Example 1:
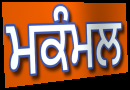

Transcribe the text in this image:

ਮਕੰਮਲ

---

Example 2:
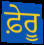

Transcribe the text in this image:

ਫ਼ੇਰੂ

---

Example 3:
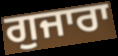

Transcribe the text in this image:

ਗੁਜਾਰਾ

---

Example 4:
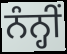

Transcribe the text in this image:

ਨੰਨ੍ਹੀਂ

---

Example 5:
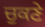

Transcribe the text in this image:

ਚੁਕਣੇ